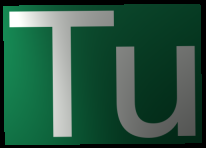
Tu